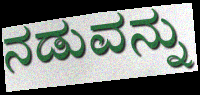
ನಡುವನ್ನು